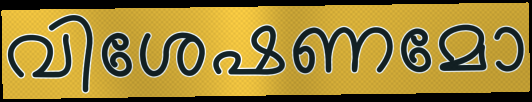
വിശേഷണമോ